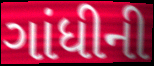
ગાંધીની